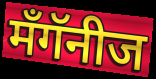
मँगॅनीज